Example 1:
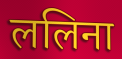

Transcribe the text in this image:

ललिना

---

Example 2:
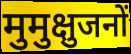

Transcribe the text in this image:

मुमुक्षुजनों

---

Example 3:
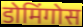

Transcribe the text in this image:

डोमिंगोस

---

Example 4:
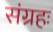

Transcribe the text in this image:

संग्रहः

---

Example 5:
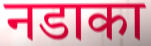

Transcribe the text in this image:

नडाका